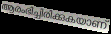
ആരംഭിച്ചിരിക്കുകയാണ്